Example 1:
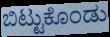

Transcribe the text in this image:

ಬಿಟ್ಟುಕೊಂಡು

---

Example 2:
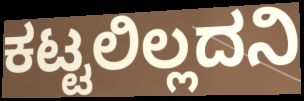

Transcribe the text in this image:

ಕಟ್ಟಲಿಲ್ಲದನಿ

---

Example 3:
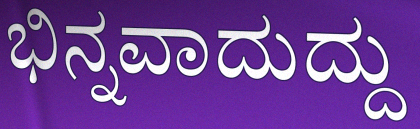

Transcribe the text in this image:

ಭಿನ್ನವಾದುದ್ದು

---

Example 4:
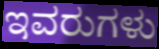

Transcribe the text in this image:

ಇವರುಗಳು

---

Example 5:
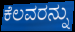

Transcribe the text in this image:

ಕೆಲವರನ್ನು